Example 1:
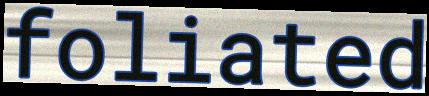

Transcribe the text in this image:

foliated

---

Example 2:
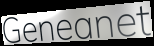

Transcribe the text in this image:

Geneanet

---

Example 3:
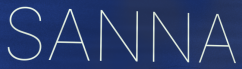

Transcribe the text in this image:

SANNA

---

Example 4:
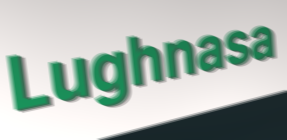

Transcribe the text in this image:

Lughnasa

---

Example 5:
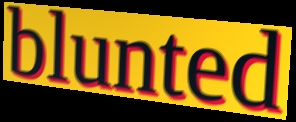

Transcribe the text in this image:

blunted